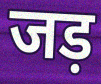
जड़